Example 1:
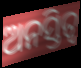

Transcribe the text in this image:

ଅନସ୍ତିତ୍ୱ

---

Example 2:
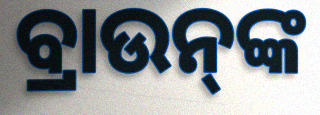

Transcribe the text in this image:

ବ୍ରାଉନ୍‌ଙ୍କ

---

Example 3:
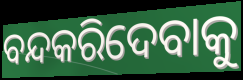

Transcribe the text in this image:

ବନ୍ଦକରିଦେବାକୁ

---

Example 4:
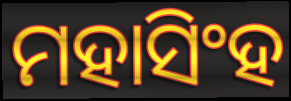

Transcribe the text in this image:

ମହାସିଂହ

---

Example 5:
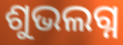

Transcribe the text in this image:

ଶୁଭଲଗ୍ନ